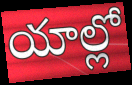
యాల్లో